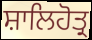
ਸ਼ਾਲਿਹੋਤ੍ਰ